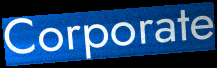
Corporate